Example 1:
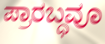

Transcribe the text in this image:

ಪ್ರಾರಬ್ಧವೂ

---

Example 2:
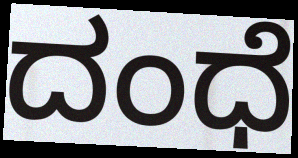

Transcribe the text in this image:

ದಂಧೆ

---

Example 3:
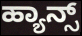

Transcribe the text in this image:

ಹ್ಯಾನ್ಸ್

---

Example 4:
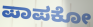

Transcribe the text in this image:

ಪಾಪಕೋ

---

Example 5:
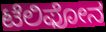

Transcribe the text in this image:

ಟೆಲಿಫೋನ